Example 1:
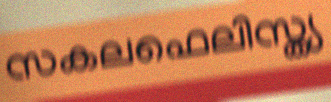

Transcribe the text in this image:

സകലഫെലിസ്ത്യ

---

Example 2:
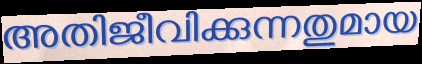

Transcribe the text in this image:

അതിജീവിക്കുന്നതുമായ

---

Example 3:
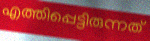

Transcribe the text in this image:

എത്തിപ്പെട്ടിരുന്നത്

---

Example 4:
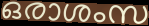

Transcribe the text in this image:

ഒരാശംസ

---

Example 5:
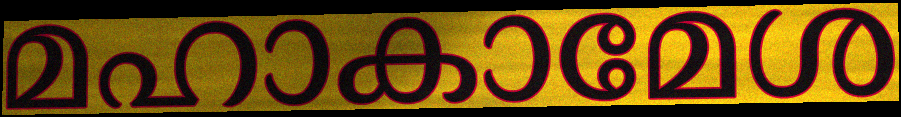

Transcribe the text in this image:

മഹാകാമേശ